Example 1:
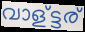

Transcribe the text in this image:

വാള്ട്ടര്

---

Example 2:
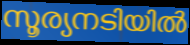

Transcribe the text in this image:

സൂര്യനടിയിൽ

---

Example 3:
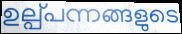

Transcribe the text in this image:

ഉല്പ്പന്നങ്ങളുടെ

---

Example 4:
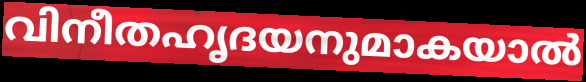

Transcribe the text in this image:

വിനീതഹൃദയനുമാകയാൽ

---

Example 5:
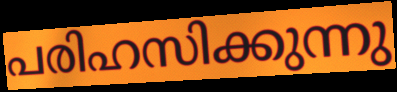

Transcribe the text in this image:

പരിഹസിക്കുന്നു